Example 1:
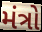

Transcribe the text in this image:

મંત્રો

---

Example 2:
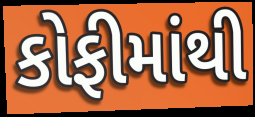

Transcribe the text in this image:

કોફીમાંથી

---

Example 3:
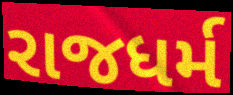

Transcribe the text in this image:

રાજધર્મ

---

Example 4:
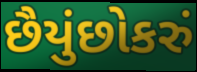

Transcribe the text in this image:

છૈયુંછોકરું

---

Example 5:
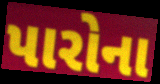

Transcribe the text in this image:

પારોના